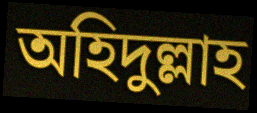
অহিদুল্লাহ